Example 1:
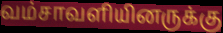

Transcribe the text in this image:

வம்சாவளியினருக்கு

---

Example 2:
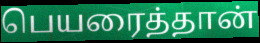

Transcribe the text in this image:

பெயரைத்தான்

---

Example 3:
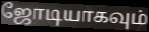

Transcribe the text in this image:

ஜோடியாகவும்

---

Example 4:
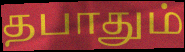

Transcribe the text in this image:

தபாதும்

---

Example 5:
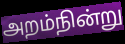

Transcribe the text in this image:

அறம்நின்று